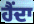
ਹੈਂਦਾ